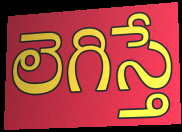
లెగిస్తే